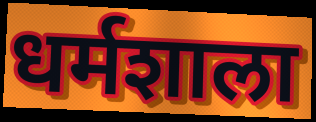
धर्मशाला